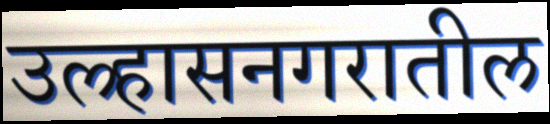
उल्हासनगरातील